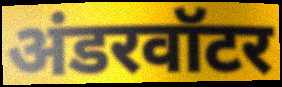
अंडरवॉटर